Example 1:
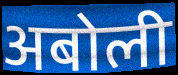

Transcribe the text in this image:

अबोली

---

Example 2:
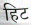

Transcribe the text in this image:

हिट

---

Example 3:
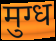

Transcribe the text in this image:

मुग्ध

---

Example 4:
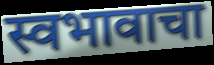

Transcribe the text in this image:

स्वभावाचा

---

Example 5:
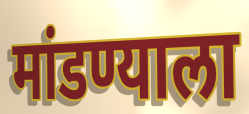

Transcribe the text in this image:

मांडण्याला